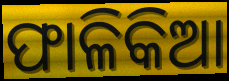
ଫାଳିକିଆ